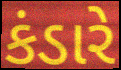
કંડારે